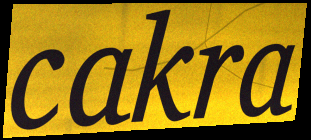
cakra